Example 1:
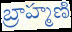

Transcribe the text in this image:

బ్రాహ్మణి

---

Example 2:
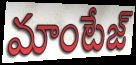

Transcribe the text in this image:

మాంటేజ్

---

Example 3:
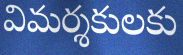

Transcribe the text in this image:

విమర్శకులకు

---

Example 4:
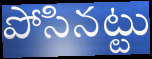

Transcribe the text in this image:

పోసినట్టు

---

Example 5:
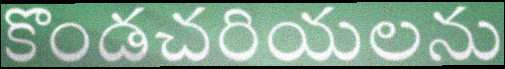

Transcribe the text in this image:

కొండచరియలను